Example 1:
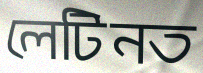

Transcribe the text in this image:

লেটিনত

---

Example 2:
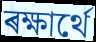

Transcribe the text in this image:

ৰক্ষাৰ্থে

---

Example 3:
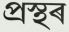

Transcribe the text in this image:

প্ৰস্থৰ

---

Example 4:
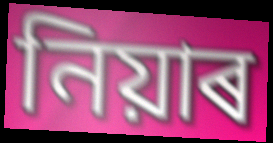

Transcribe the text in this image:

নিয়াৰ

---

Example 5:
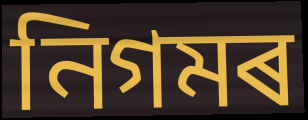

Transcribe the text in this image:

নিগমৰ